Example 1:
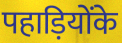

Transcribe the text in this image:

पहाड़ियोंके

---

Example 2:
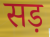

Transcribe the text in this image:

सड़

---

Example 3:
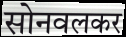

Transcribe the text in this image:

सोनवलकर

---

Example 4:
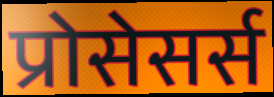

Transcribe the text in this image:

प्रोसेसर्स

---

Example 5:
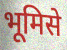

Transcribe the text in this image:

भूमिसे